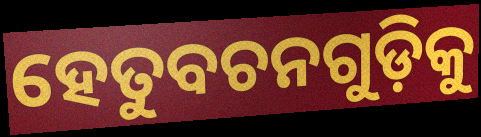
ହେତୁବଚନଗୁଡ଼ିକୁ